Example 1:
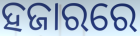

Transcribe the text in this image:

ହଜାରରେ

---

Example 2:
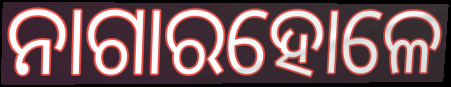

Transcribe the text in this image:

ନାଗାରହୋଳେ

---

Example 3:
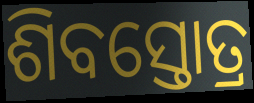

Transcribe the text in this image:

ଶିବସ୍ତୋତ୍ର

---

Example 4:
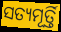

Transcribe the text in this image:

ସତ୍ୟମୂର୍ତ୍ତି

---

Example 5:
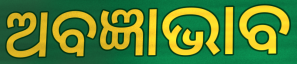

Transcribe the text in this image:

ଅବଜ୍ଞାଭାବ